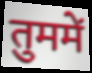
तुममें